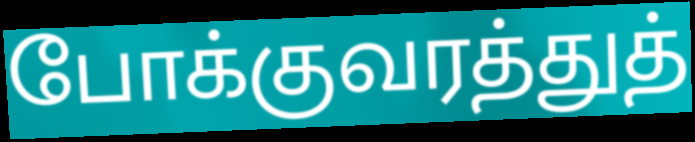
போக்குவரத்துத்